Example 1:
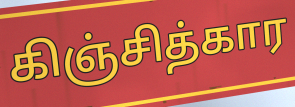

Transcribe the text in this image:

கிஞ்சித்கார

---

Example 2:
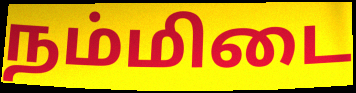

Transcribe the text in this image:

நம்மிடை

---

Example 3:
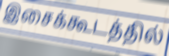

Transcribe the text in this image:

இசைக்கூடத்தில்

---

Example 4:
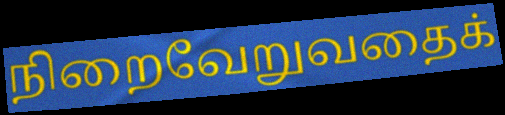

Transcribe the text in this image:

நிறைவேறுவதைக்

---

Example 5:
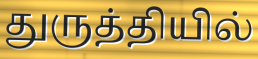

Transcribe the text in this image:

துருத்தியில்